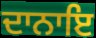
ਦਾਨਾਇ